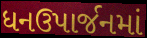
ધનઉપાર્જનમાં